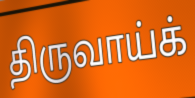
திருவாய்க்